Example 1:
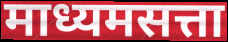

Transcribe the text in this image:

माध्यमसत्ता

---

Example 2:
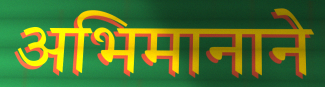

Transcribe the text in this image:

अभिमानाने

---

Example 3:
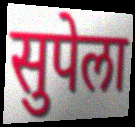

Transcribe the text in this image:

सुपेला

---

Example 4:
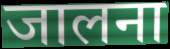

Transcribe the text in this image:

जालना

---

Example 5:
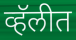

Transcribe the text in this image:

व्हॅलीत